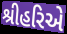
શ્રીહરિએ